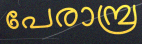
പേരാമ്പ്ര